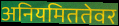
अनियमिततेवर